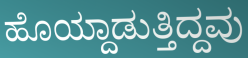
ಹೊಯ್ದಾಡುತ್ತಿದ್ದವು